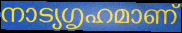
നാട്യഗൃഹമാണ്